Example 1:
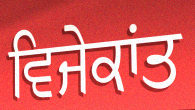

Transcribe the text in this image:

ਵਿਜੇਕਾਂਤ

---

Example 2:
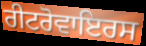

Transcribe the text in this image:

ਰੀਟਰੋਵਾਇਰਸ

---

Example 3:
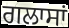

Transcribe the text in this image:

ਗਲਾਸਾਂ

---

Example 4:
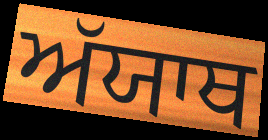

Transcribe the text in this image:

ਅੱਯਾਥ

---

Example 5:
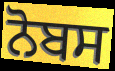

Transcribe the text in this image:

ਨੋਬਸ